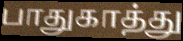
பாதுகாத்து